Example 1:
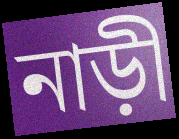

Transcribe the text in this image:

নাড়ী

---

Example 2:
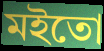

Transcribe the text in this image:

মইতো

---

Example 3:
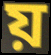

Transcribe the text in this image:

য়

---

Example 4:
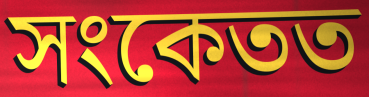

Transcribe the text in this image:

সংকেতত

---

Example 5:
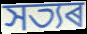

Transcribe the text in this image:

সত্যৰ